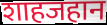
शाहजहान